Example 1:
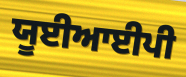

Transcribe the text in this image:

ਯੂਈਆਈਪੀ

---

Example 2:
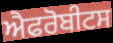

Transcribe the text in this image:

ਐਫਰੋਬੀਟਸ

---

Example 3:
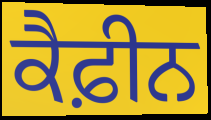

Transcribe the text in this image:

ਕੈਫ਼ੀਨ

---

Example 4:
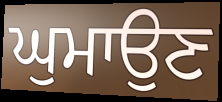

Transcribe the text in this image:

ਘੁਮਾਉਣ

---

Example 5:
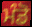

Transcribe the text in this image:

ਮੰਡੋ